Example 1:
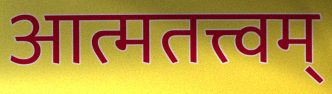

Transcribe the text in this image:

आत्मतत्त्वम्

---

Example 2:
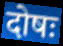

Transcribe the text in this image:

दोषः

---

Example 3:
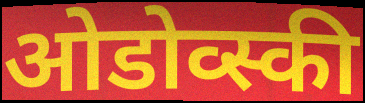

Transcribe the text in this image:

ओडोव्स्की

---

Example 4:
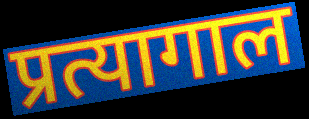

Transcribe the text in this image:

प्रत्यागाल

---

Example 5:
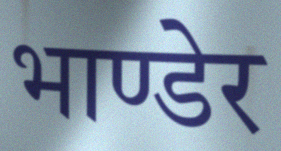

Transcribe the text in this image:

भाण्‍डेर